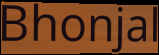
Bhonjal